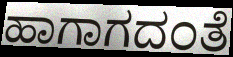
ಹಾಗಾಗದಂತೆ